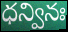
ధన్వినః